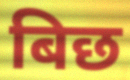
बिछ